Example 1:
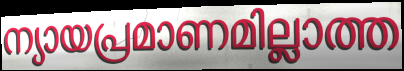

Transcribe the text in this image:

ന്യായപ്രമാണമില്ലാത്ത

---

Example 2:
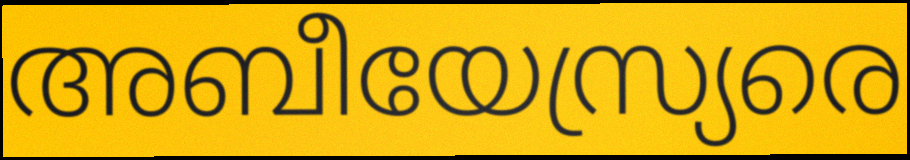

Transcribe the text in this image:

അബീയേസ്ര്യരെ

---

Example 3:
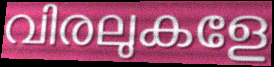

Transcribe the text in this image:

വിരലുകളേ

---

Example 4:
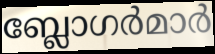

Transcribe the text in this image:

ബ്ലോഗർമാർ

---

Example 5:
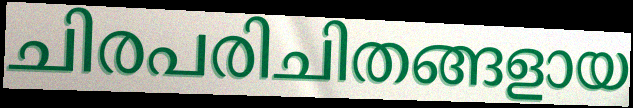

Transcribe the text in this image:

ചിരപരിചിതങ്ങളായ